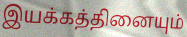
இயக்கத்தினையும்